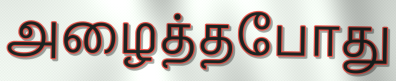
அழைத்தபோது